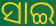
ସାଇ